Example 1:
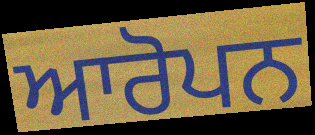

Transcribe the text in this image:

ਆਰੋਪਨ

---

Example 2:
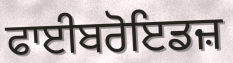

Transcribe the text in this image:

ਫਾਈਬਰੋਇਡਜ਼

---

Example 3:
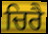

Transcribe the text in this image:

ਚਿਰੈ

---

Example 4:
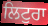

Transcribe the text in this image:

ਲਿਟੁਰਾ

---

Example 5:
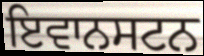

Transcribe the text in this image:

ਇਵਾਨਸਟਨ